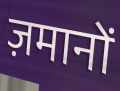
ज़मानों